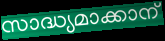
സാദ്ധ്യമാക്കാന്